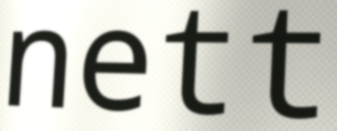
nett